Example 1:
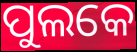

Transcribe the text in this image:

ପୁଲକେ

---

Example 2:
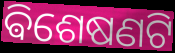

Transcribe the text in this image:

ଵିଶେଷଣଟି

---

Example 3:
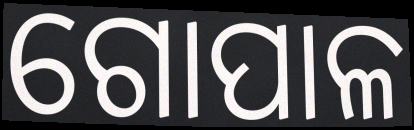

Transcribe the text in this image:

ଗୋପାଳ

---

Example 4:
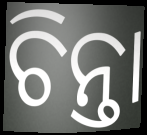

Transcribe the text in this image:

ଚିନ୍ତା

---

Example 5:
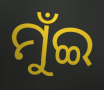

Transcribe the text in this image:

ମୁଁଇ